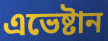
এভেষ্টান